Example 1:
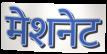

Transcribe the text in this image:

मेशनेट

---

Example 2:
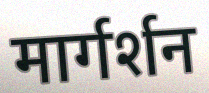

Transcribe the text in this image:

मार्गर्शन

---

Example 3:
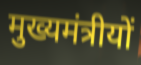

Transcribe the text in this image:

मुख्यमंत्रीयों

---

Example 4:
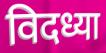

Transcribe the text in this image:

विदध्या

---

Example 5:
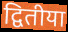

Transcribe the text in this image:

द्वितीया